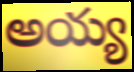
అయ్య